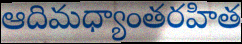
ఆదిమధ్యాంతరహిత